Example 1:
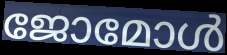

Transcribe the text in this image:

ജോമോൾ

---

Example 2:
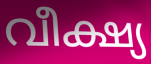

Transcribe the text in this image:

വീക്ഷ്യ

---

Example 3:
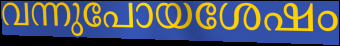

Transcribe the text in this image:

വന്നുപോയശേഷം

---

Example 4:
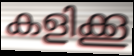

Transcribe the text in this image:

കളിക്കൂ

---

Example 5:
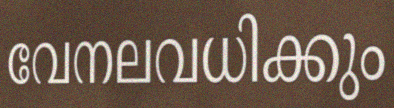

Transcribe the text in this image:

വേനലവധിക്കും